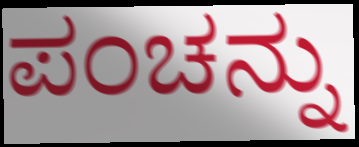
ಪಂಚನ್ನು